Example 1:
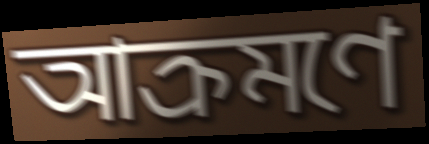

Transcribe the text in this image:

আক্ৰমণে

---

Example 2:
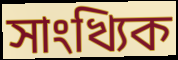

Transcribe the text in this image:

সাংখ্যিক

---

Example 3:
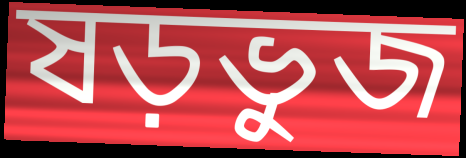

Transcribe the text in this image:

ষড়ভুজ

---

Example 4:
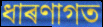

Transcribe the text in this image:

ধাৰণাগত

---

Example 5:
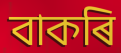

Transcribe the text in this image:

বাকৰি